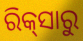
ରିକ୍‌ସାରୁ